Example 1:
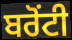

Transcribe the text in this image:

ਬਰੋਂਟੀ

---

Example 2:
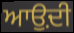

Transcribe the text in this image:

ਆਉ਼ਦੀ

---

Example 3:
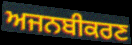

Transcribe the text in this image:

ਅਜਨਬੀਕਰਣ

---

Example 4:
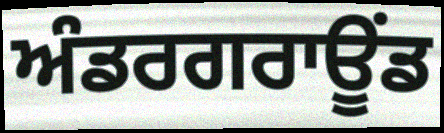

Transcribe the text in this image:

ਅੰਡਰਗਰਾਊਂਡ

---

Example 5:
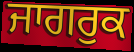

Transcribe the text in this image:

ਜਾਗਰੁਕ